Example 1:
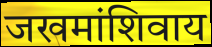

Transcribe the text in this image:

जखमांशिवाय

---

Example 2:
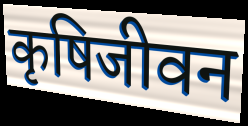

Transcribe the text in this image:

कृषिजीवन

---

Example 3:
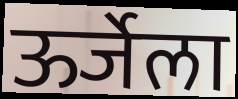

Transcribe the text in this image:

ऊर्जेला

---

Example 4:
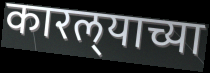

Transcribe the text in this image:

कारल्याच्या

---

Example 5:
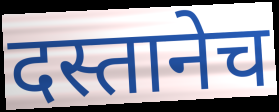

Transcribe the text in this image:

दस्तानेच